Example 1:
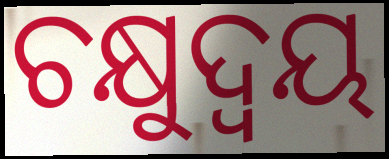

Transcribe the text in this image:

ଚକ୍ଷୁଦ୍ୱୟ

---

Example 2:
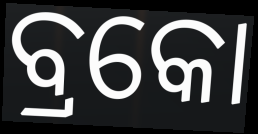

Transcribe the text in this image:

ବ୍ରକୋ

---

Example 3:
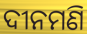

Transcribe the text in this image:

ଦୀନମଣି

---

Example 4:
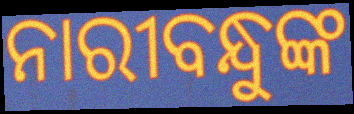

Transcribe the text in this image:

ନାରୀବନ୍ଧୁଙ୍କ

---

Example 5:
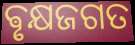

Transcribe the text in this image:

ଵୃକ୍ଷଜଗତ